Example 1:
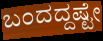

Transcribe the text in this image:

ಬಂದದ್ದಷ್ಟೇ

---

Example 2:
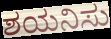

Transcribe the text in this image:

ಶಯನಿಸು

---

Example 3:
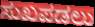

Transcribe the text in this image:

ಸುಖಪಡಲು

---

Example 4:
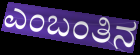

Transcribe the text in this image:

ಎಂಬಂತಿನ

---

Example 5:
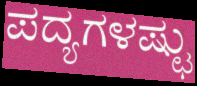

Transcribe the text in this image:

ಪದ್ಯಗಳಷ್ಟು